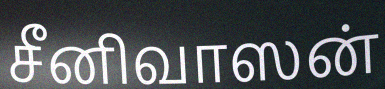
சீனிவாஸன்